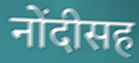
नोंदीसह